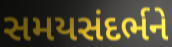
સમયસંદર્ભને